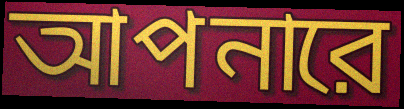
আপনারে